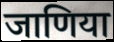
जाणिया